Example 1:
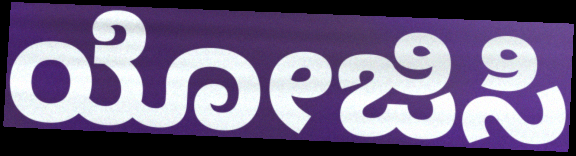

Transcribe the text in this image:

ಯೋಜಿಸಿ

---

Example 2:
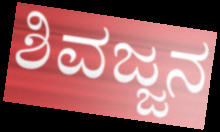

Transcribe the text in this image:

ಶಿವಜ್ಜನ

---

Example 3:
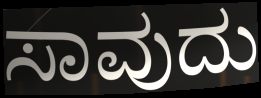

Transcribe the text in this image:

ಸಾವುದು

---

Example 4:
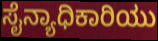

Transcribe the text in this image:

ಸೈನ್ಯಾಧಿಕಾರಿಯು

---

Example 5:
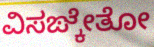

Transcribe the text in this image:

ವಿಸಙ್ಕೇತೋ